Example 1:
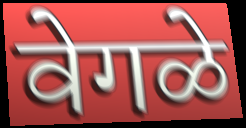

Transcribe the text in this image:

वेगळे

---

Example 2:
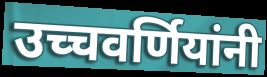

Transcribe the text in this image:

उच्चवर्णियांनी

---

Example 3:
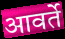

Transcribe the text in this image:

आवर्ते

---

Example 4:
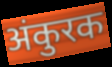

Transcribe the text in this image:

अंकुरक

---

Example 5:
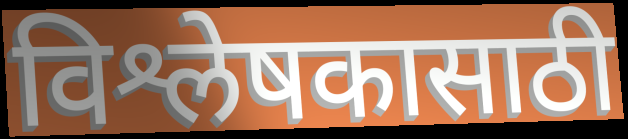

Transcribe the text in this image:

विश्लेषकासाठी